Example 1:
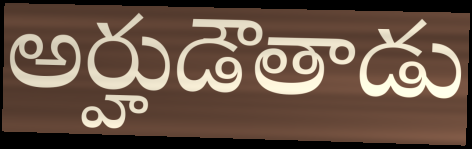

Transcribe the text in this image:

అర్హుడౌతాడు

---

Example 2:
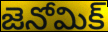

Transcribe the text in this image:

జెనోమిక్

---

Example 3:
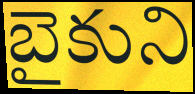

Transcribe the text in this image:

బైకుని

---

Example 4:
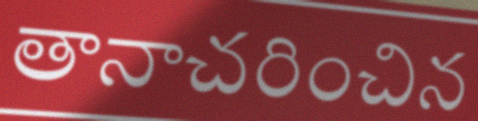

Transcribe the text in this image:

తానాచరించిన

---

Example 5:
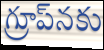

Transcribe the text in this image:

గ్రూప్‌నకు